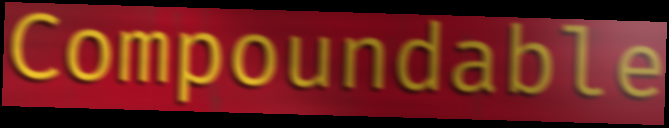
Compoundable